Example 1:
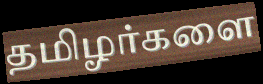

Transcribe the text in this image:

தமிழர்களை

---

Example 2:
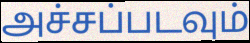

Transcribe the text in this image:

அச்சப்படவும்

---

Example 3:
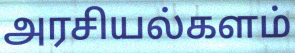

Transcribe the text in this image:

அரசியல்களம்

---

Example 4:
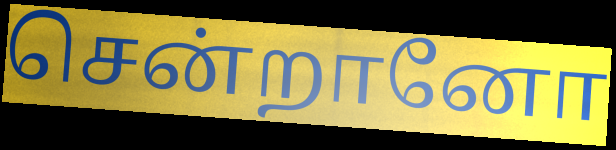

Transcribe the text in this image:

சென்றானோ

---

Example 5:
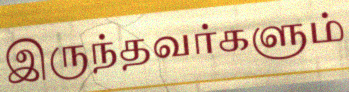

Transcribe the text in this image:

இருந்தவர்களும்